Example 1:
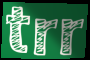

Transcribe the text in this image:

trr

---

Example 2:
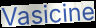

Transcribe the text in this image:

Vasicine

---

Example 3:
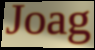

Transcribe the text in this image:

Joag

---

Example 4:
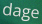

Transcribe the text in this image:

dage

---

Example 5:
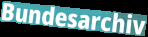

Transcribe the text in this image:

Bundesarchiv